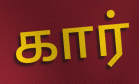
கார்